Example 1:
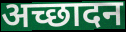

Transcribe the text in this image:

अच्छादन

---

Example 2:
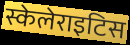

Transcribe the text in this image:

स्केलेराइटिस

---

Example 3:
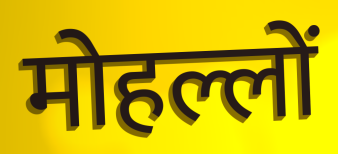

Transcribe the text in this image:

मोहल्लों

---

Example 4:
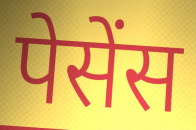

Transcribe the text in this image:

पेसेंस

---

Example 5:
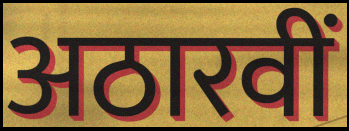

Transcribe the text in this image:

अठारवीं